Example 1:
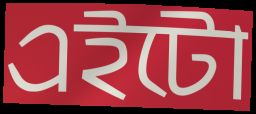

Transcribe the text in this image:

এইটো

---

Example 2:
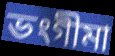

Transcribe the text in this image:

ভংগীমা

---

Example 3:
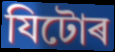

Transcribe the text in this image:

যিটোৰ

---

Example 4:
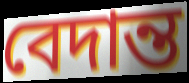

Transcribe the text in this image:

বেদান্ত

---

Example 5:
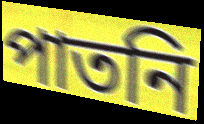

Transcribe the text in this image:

পাতনি